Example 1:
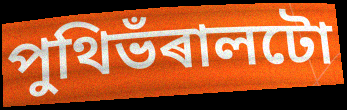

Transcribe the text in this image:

পুথিভঁৰালটো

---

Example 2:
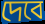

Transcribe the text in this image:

দেবে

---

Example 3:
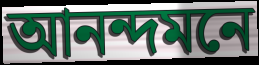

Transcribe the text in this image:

আনন্দমনে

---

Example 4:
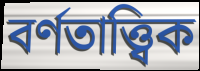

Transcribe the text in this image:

বৰ্ণতাত্ত্বিক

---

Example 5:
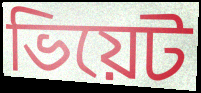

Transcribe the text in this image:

ভিয়েট